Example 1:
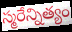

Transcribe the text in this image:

స్మరేన్నిత్యం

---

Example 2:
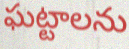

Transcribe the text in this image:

ఘట్టాలను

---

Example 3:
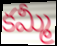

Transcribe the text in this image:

కమ్మీ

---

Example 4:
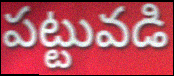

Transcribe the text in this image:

పట్టువడి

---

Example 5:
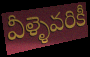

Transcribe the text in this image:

వీళ్ళెవరికీ